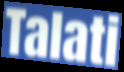
Talati